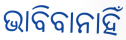
ଭାବିବାନାହିଁ